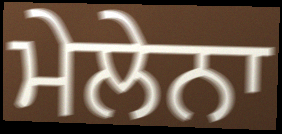
ਮੇਲੇਨਾ